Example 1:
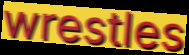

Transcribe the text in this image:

wrestles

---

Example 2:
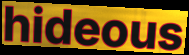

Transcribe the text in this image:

hideous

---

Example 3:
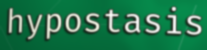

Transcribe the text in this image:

hypostasis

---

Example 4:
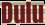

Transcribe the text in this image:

Dulu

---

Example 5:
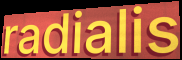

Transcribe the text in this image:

radialis